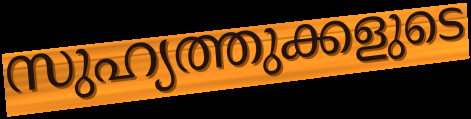
സുഹ്യത്തുക്കളുടെ